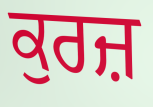
ਕੁਰਜ਼